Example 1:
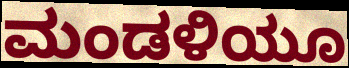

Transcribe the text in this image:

ಮಂಡಳಿಯೂ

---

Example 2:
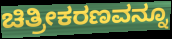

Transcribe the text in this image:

ಚಿತ್ರೀಕರಣವನ್ನೂ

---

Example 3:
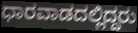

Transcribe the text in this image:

ಧಾರವಾಡದಲ್ಲಿದ್ದರು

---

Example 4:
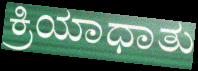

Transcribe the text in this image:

ಕ್ರಿಯಾಧಾತು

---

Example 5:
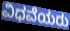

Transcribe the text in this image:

ವಿಧವೆಯರು